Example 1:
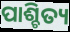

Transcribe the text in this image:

ପାଶ୍ଚିତ୍ୟ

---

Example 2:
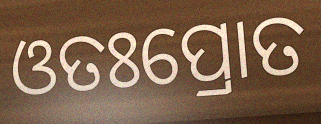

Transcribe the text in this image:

ଓତଃପ୍ରୋତ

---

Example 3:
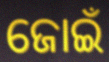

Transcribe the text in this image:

ଜୋଇଁ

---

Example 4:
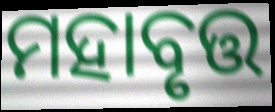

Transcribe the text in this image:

ମହାବୃତ୍ତ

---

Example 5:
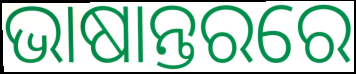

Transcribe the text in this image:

ଭାଷାନ୍ତରରେ